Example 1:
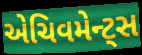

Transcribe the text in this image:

એચિવમેન્ટ્સ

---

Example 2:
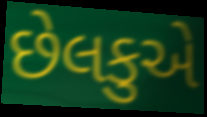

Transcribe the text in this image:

છેલકુએ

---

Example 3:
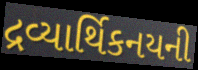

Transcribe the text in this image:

દ્રવ્યાર્થિકનયની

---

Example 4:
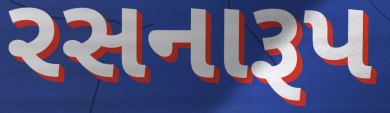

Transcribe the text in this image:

રસનારૂપ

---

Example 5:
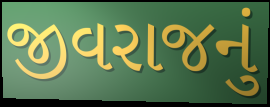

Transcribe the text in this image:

જીવરાજનું